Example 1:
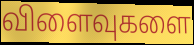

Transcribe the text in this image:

விளைவுகளை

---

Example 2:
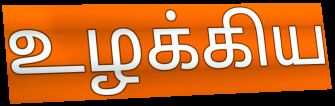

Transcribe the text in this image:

உழக்கிய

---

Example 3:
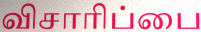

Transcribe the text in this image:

விசாரிப்பை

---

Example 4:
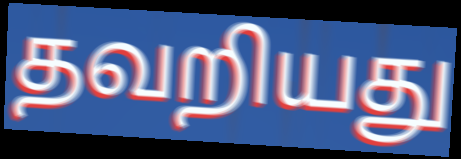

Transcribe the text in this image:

தவறியது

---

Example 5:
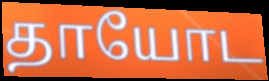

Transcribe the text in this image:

தாயோட